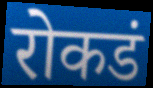
रोकडं